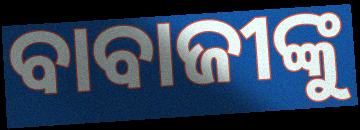
ବାବାଜୀଙ୍କୁ